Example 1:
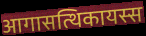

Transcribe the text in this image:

आगासत्थिकायस्स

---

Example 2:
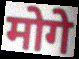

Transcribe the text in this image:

मोगे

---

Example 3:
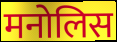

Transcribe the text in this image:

मनोलिस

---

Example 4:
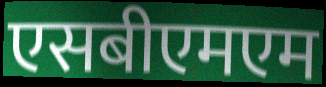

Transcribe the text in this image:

एसबीएमएम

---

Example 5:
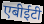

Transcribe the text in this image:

एबीईटी